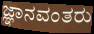
ಜ್ಞಾನವಂತರು